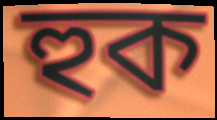
হুক